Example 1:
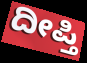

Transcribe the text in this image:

ದೀಪ್ತಿ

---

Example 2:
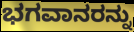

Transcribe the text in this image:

ಭಗವಾನರನ್ನು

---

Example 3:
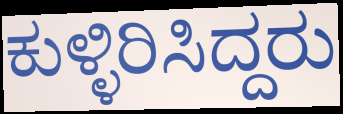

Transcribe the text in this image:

ಕುಳ್ಳಿರಿಸಿದ್ದರು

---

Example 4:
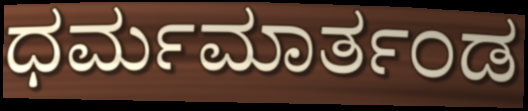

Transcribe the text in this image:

ಧರ್ಮಮಾರ್ತಂಡ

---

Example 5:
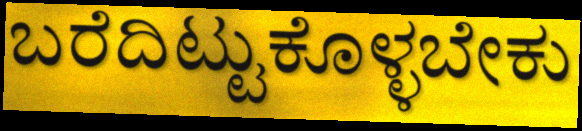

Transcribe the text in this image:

ಬರೆದಿಟ್ಟುಕೊಳ್ಳಬೇಕು